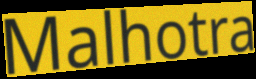
Malhotra